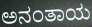
ಅನಂತಾಯ